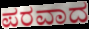
ಪರವಾದ